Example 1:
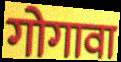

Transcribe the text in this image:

गोगावा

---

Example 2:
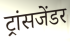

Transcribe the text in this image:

ट्रांसजेंडर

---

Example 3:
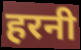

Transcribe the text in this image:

हरनी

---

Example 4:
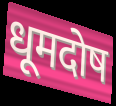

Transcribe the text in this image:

धूमदोष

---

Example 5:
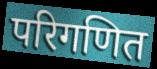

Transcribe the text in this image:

परिगणित